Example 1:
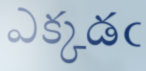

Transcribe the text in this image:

ఎక్కడఁ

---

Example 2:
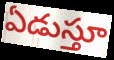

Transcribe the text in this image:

ఏడుస్తూ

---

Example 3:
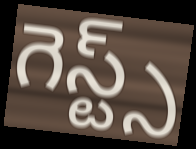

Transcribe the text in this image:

గెస్ట్స్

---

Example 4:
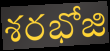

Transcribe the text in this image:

శరభోజి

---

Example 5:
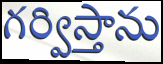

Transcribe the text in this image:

గర్విస్తాను